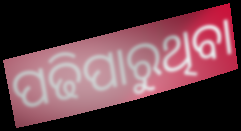
ପଢିପାରୁଥିବା